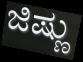
ಜಿಷ್ಣು